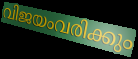
വിജയംവരിക്കും